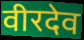
वीरदेव